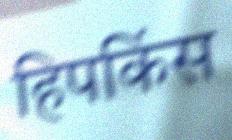
हिपकिंस